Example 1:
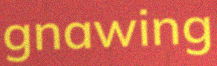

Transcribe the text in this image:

gnawing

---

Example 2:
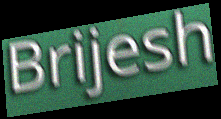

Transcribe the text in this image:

Brijesh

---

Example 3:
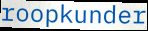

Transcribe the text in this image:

roopkunder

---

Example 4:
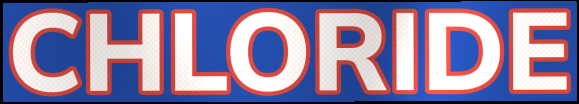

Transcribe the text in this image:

CHLORIDE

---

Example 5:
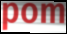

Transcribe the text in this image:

pom